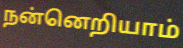
நன்னெறியாம்